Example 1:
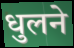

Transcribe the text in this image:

धुलने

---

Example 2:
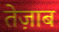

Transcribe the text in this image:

तेज़ाब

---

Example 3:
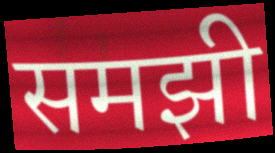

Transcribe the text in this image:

समझी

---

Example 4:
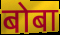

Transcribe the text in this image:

बोबा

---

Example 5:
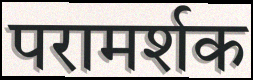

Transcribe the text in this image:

परामर्शक